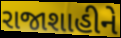
રાજાશાહીને